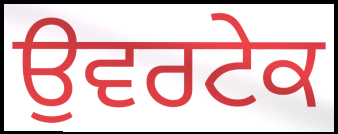
ਉਵਰਟੇਕ